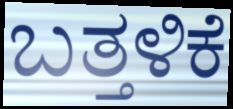
ಬತ್ತಳಿಕೆ